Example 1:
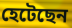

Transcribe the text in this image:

হেটেছেন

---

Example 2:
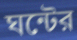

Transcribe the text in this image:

ঘন্টের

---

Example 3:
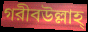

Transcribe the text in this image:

গরীবউল্লাহ্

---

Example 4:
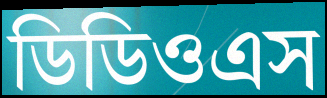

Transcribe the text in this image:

ডিডিওএস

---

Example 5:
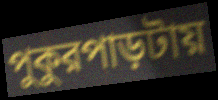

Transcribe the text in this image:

পুকুরপাড়টায়